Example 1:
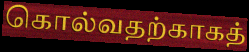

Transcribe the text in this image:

கொல்வதற்காகத்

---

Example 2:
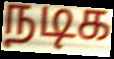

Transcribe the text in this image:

நடிக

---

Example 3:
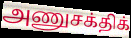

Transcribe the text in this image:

அணுசக்திக்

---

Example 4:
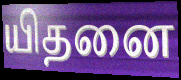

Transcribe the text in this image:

யிதனை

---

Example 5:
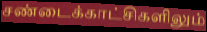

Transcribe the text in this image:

சண்டைக்காட்சிகளிலும்